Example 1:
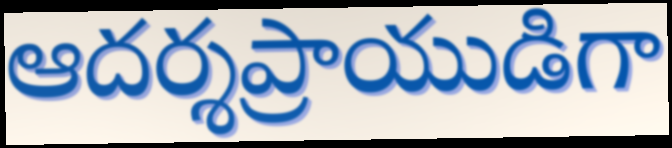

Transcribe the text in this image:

ఆదర్శప్రాయుడిగా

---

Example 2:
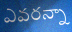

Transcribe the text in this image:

ఎవరన్నా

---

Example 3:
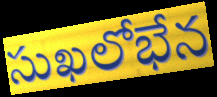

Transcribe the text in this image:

సుఖలోభేన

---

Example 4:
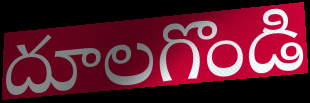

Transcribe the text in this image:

దూలగొండి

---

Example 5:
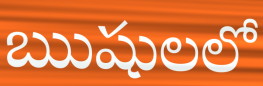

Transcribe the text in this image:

ఋషులలో